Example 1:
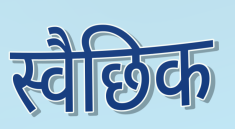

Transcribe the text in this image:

स्वैछिक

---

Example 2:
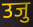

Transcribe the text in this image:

उजु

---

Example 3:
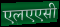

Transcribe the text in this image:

एलएएसी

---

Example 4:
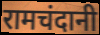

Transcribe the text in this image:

रामचंदानी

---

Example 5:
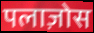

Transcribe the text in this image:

पलाज़ोस